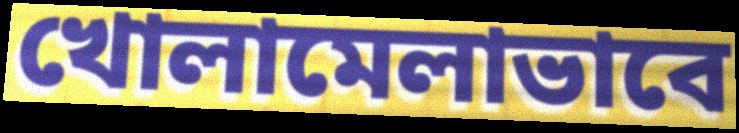
খোলামেলাভাবে